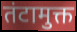
तंटामुक्त